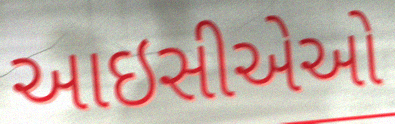
આઇસીએઓ